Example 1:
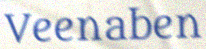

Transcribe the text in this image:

Veenaben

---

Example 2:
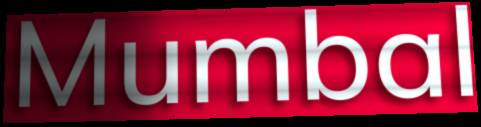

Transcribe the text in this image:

Mumbal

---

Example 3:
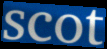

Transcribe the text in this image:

scot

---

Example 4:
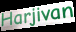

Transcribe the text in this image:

Harjivan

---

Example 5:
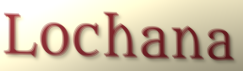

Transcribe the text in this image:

Lochana